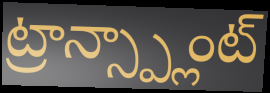
ట్రాన్స్ప్లాంట్